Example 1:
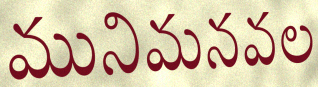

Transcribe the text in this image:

మునిమనవల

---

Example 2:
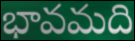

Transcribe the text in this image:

భావమది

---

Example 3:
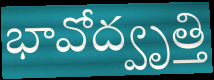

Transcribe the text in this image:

భావోద్వృత్తి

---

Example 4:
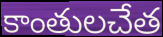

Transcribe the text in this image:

కాంతులచేత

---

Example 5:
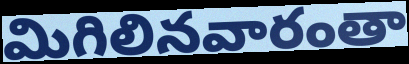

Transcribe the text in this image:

మిగిలినవారంతా